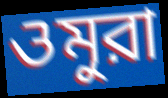
ওমুরা